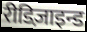
रीडिज़ाइन्ड